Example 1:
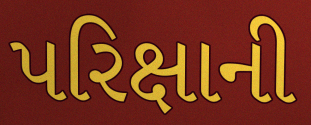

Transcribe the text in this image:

પરિક્ષાની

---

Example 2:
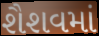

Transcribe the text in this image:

શૈશવમાં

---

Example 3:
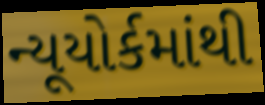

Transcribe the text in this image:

ન્યૂયોર્કમાંથી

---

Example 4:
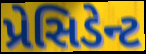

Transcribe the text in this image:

પ્રેસિડેન્ટ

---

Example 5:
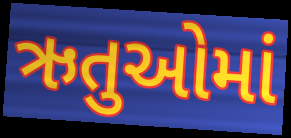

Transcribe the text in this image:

ઋતુઓમાં